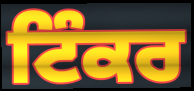
ਟਿੰਕਰ